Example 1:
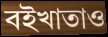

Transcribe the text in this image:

বইখাতাও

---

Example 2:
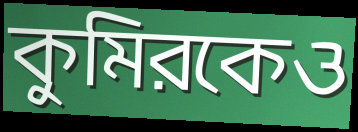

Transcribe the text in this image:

কুমিরকেও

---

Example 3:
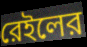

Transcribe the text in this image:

রেইলের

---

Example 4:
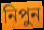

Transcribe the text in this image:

নিপুন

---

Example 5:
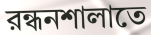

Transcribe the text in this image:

রন্ধনশালাতে